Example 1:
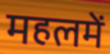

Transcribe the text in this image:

महलमें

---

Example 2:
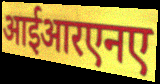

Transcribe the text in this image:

आईआरएनए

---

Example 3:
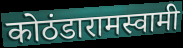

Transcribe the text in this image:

कोठंडारामस्वामी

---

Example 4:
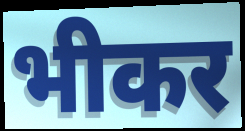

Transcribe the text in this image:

भीकर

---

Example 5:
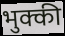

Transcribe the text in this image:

भुक्की